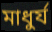
মাধুর্য